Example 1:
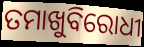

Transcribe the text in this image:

ତମାଖୁବିରୋଧୀ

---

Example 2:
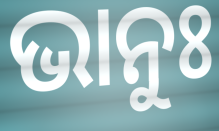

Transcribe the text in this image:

ଭାନୁଃ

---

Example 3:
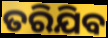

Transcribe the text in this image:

ତରିଯିବ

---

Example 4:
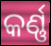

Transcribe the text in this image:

କର୍ଣ୍ଣ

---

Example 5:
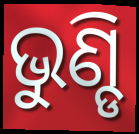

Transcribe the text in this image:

ଭୁଣ୍ଡି